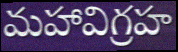
మహావిగ్రహ